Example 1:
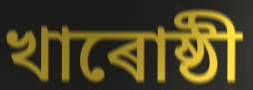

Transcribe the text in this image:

খাৰোষ্ঠী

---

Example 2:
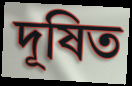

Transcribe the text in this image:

দূষিত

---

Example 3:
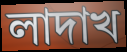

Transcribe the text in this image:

লাদাখ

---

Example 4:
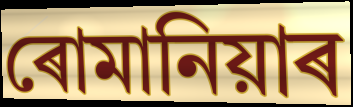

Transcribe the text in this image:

ৰোমানিয়াৰ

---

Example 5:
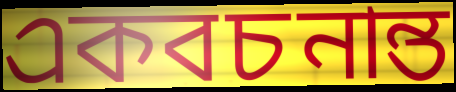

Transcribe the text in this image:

একবচনান্ত